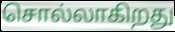
சொல்லாகிறது